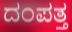
ದಂಪತ್ತ